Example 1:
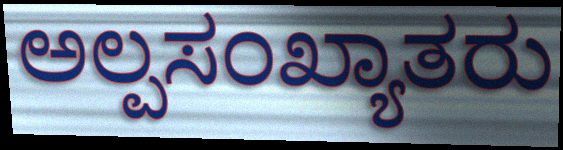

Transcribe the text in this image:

ಅಲ್ಪಸಂಖ್ಯಾತರು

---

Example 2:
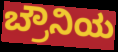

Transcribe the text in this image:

ಬ್ರೌನಿಯ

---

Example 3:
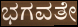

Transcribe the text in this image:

ಭಗವತೇ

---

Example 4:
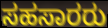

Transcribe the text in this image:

ಸಹಸಾರರು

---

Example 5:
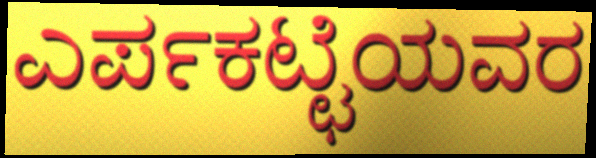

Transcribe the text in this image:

ಎರ್ಪಕಟ್ಟೆಯವರ